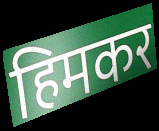
हिमकर